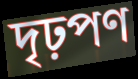
দৃঢ়পণ